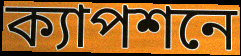
ক্যাপশনে